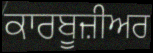
ਕਾਰਬੂਜ਼ੀਅਰ